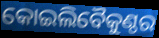
କୋଇଲିବୈକୁଣ୍ଠର